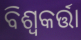
ବିଶ୍ୱକର୍ତ୍ତା